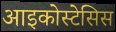
आइकोस्टेसिस